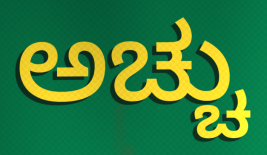
ಅಚ್ಚು